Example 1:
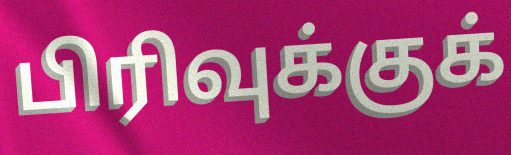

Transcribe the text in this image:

பிரிவுக்குக்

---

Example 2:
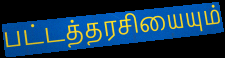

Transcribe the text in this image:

பட்டத்தரசியையும்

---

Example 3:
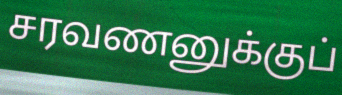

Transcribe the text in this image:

சரவணனுக்குப்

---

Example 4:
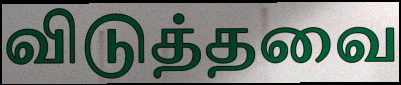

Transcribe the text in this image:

விடுத்தவை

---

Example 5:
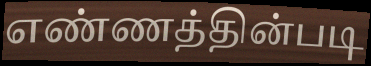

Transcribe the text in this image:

எண்ணத்தின்படி